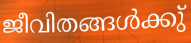
ജീവിതങ്ങൾക്കു്